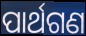
ପାର୍ଥଗଣ